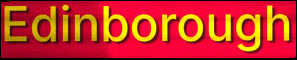
Edinborough